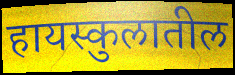
हायस्कुलातील